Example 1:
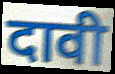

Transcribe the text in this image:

दावी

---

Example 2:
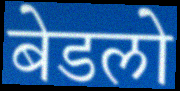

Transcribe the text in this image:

बेडलो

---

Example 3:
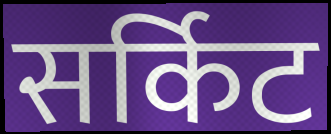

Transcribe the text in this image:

सर्किट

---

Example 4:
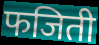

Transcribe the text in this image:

फजिती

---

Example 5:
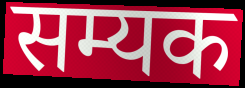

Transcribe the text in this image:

सम्यक